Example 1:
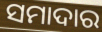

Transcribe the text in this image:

ସମାଦାର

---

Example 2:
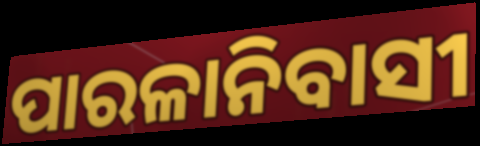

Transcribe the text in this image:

ପାରଳାନିବାସୀ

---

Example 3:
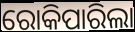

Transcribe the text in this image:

ରୋକିପାରିଲା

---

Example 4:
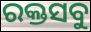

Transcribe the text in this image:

ରକ୍ତସବୁ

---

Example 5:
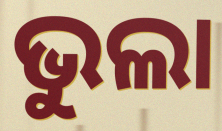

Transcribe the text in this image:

ଭୁଲା